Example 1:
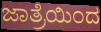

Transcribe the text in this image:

ಜಾತ್ರೆಯಿಂದ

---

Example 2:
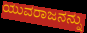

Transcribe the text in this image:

ಯುವರಾಜನನ್ನು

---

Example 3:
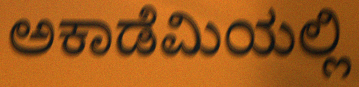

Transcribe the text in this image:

ಅಕಾಡೆಮಿಯಲ್ಲಿ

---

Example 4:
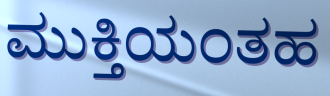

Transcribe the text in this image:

ಮುಕ್ತಿಯಂತಹ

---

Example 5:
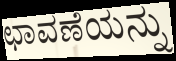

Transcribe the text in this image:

ಛಾವಣೆಯನ್ನು